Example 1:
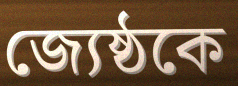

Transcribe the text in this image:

জ্যেষ্ঠকে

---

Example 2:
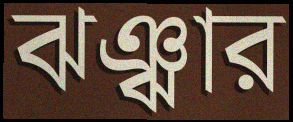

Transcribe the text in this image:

ঝঞ্ঝার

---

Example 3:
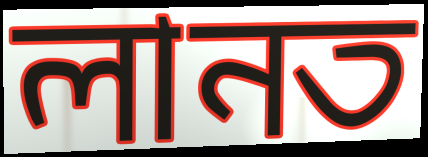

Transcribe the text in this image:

লানত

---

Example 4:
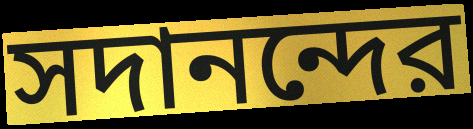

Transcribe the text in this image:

সদানন্দের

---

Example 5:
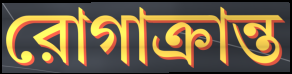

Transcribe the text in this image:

রোগাক্রান্ত